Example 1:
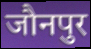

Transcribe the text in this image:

जौनपुर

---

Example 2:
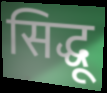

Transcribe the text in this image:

सिद्धू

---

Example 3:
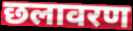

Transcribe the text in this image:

छलावरण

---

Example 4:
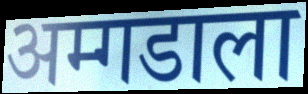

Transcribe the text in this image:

अम्गडाला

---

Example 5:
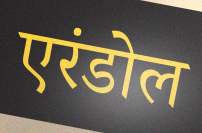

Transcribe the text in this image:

एरंडोल